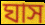
ঘাস